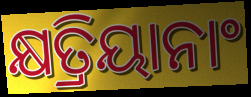
କ୍ଷତ୍ରିୟାନାଂ